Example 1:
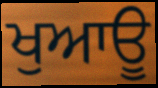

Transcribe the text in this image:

ਖੁਆਊ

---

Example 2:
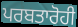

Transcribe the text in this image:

ਪਰਬਤਾਰੋਹੀ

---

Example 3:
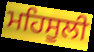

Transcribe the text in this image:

ਮਹਿਸੂਲੀ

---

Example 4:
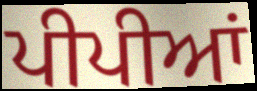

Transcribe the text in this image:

ਪੀਪੀਆਂ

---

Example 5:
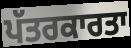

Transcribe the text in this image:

ਪੱਤਰਕਾਰਤਾ